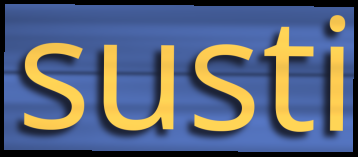
susti